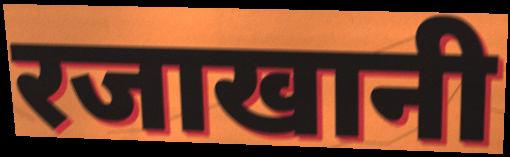
रजाखानी